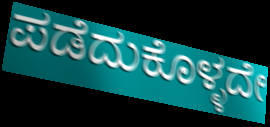
ಪಡೆದುಕೊಳ್ಳದೇ